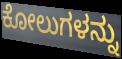
ಕೋಲುಗಳನ್ನು